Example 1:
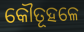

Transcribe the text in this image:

କୌତୂହଳେ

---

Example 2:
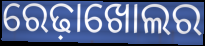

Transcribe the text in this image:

ରେଢ଼ାଖୋଲର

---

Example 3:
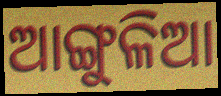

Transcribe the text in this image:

ଆଙ୍ଗୁଳିଆ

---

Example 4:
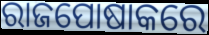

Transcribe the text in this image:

ରାଜପୋଷାକରେ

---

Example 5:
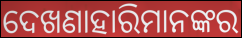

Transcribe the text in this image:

ଦେଖଣାହାରିମାନଙ୍କର